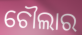
ଚୌଲାର